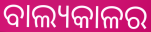
ବାଲ୍ୟକାଳର